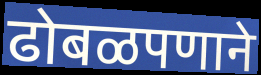
ढोबळपणाने